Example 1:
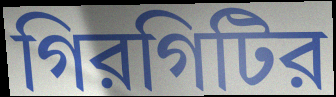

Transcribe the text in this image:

গিরগিটির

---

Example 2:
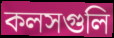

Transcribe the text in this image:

কলসগুলি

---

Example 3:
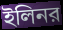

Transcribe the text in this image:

ইলিনর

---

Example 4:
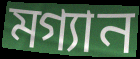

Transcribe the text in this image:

মগ্যান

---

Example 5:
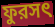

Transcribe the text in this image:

ফুরসৎ